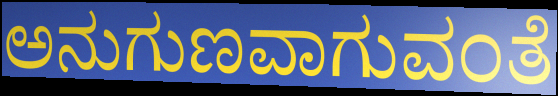
ಅನುಗುಣವಾಗುವಂತೆ